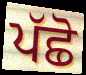
ਪੱਛੋ